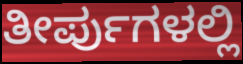
ತೀರ್ಪುಗಳಲ್ಲಿ